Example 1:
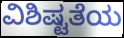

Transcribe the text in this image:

ವಿಶಿಷ್ಟತೆಯ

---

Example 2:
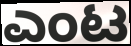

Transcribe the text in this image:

ಎಂಟ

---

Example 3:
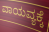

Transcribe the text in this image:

ವಾಯವ್ಯಕ್ಕೆ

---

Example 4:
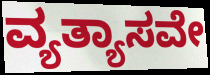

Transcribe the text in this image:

ವ್ಯತ್ಯಾಸವೇ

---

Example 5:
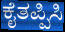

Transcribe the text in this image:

ಕೈತಪ್ಪಿಸಿ